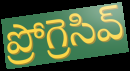
ప్రోగ్రెసివ్